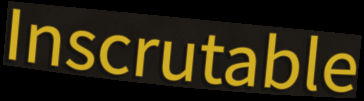
Inscrutable